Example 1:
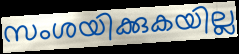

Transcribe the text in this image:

സംശയിക്കുകയില്ല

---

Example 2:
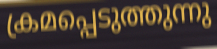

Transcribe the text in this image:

ക്രമപ്പെടുത്തുന്നു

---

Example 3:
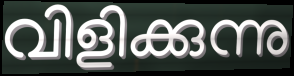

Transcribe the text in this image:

വിളിക്കുന്നു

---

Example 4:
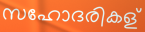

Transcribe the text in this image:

സഹോദരികള്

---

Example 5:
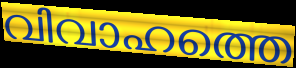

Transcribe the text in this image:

വിവാഹത്തെ